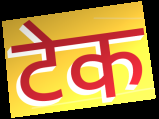
टेक